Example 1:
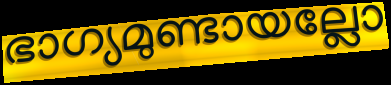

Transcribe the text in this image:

ഭാഗ്യമുണ്ടായല്ലോ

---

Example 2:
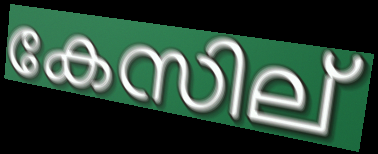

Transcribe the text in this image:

കേസില്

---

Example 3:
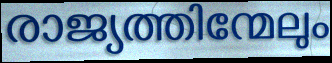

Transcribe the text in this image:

രാജ്യത്തിന്മേലും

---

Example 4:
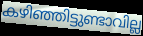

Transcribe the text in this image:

കഴിഞ്ഞിട്ടുണ്ടാവില്ല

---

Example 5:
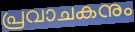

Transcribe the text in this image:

പ്രവാചകനും